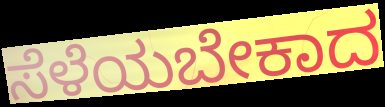
ಸೆಳೆಯಬೇಕಾದ